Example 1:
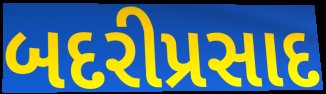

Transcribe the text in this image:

બદરીપ્રસાદ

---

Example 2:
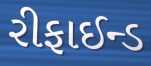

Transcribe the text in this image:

રીફાઈન્ડ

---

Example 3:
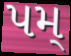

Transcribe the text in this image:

પમ્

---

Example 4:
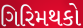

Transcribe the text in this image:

ગિરિમથકો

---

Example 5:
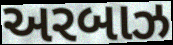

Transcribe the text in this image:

અરબાઝ